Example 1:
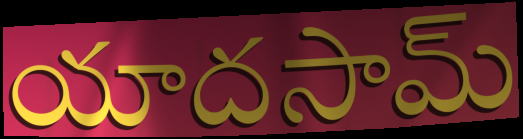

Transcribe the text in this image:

యాదసామ్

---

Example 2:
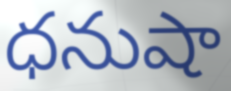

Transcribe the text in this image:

ధనుషా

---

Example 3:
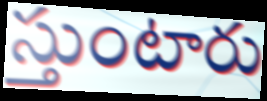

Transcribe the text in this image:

స్తుంటారు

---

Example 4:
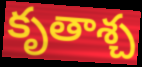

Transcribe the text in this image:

కృతాశ్చ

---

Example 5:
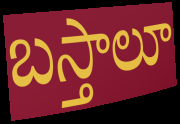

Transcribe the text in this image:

బస్తాలూ